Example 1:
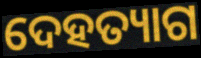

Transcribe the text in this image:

ଦେହତ୍ୟାଗ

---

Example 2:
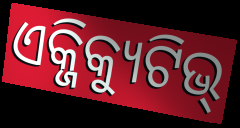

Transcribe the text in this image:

ଏକ୍ଜିକ୍ୟୁଟିଭ୍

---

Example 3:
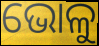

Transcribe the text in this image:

ଭୋଳୁ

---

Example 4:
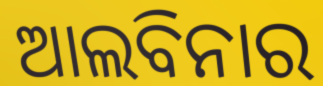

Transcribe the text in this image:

ଆଲବିନାର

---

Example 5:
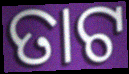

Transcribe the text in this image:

ତାଟ